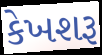
કેખશરૂ